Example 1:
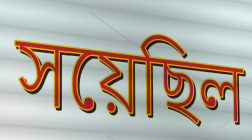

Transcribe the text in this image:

সয়েছিল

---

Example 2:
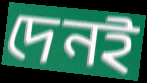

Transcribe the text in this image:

দেনই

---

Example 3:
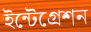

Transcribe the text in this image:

ইন্টেগ্রেশন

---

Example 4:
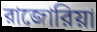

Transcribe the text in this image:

রাজোরিয়া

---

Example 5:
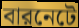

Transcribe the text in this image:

বারনেটে